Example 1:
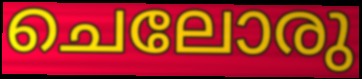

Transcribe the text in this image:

ചെലോരു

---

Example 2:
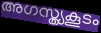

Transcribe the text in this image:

അഗസ്ത്യകൂടം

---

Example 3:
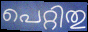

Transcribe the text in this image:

പെറ്റിതു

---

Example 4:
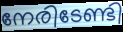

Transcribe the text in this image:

നേരിടേണ്ടി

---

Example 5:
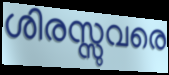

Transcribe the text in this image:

ശിരസ്സുവരെ